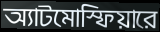
অ্যাটমোস্ফিয়ারে